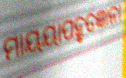
ମାୟୟାପହୃତଜ୍ଞାନା